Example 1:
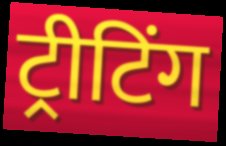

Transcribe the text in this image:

ट्रीटिंग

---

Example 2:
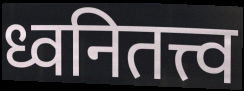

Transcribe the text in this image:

ध्वनितत्त्व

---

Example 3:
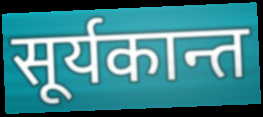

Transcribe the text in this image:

सूर्यकान्त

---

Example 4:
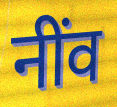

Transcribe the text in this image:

नींव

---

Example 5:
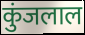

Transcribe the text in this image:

कुंजलाल